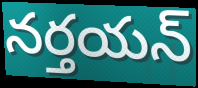
నర్తయన్